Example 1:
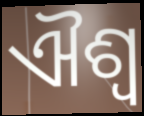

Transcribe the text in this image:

ଐଶ୍ୱ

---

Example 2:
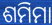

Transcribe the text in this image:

ଶମିମା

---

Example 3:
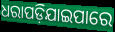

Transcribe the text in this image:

ଧରାପଡ଼ିଯାଇପାରେ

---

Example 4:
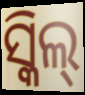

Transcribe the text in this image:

ସ୍କିଲ୍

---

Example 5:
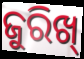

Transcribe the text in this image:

ଜୁରିଖ୍